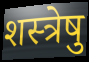
शस्त्रेषु